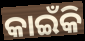
କାଇଁକି